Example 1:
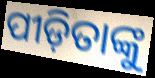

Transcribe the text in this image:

ପୀଡ଼ିତାଙ୍କୁ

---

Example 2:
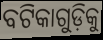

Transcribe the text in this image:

ବଟିକାଗୁଡ଼ିକୁ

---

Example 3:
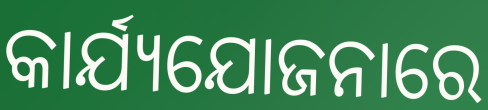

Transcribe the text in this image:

କାର୍ଯ୍ୟଯୋଜନାରେ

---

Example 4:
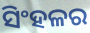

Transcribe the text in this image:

ସିଂହଳର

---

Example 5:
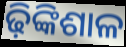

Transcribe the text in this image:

ଢ଼ିଙ୍କିଶାଳ